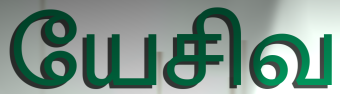
யேசிவ